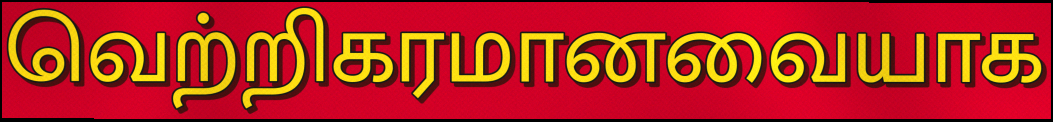
வெற்றிகரமானவையாக